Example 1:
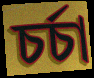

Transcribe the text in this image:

চর্চা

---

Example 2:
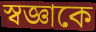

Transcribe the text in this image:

স্বজ্ঞাকে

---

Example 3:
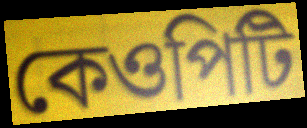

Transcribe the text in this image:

কেওপিটি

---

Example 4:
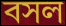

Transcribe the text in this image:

বসল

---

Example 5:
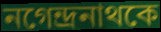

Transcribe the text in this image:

নগেন্দ্রনাথকে